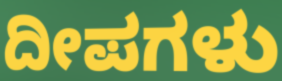
ದೀಪಗಳು